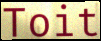
Toit